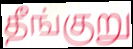
தீங்குறு